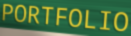
PORTFOLIO